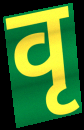
वृ